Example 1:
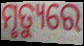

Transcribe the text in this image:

ମୃତ୍ୟୁରେ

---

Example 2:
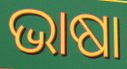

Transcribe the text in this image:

ଭାଷା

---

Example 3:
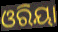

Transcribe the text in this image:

ଓରିୟା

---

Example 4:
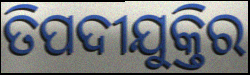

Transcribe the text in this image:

ତିପଦୀଯୁକ୍ତିର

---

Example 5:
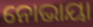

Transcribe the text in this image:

ନୋଭାୟା